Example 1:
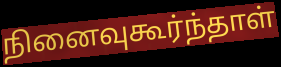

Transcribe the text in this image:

நினைவுகூர்ந்தாள்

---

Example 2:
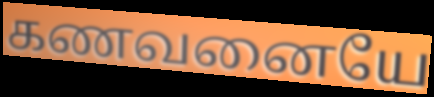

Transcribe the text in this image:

கணவனையே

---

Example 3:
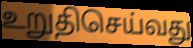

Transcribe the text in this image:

உறுதிசெய்வது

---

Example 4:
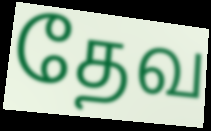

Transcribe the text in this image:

தேவ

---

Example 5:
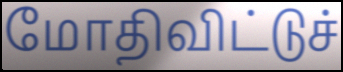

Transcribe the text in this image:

மோதிவிட்டுச்